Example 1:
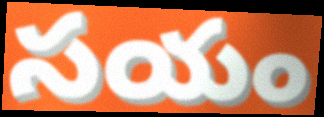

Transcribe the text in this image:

సయం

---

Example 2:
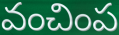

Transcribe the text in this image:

వంచింప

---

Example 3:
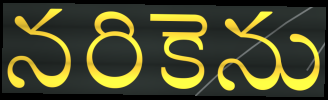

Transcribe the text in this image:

నరికెను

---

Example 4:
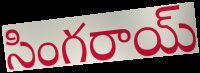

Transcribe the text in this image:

సింగరాయ్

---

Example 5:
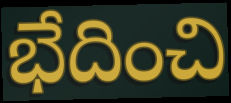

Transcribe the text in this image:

భేదించి